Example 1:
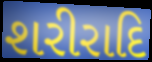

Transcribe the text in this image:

શરીરાદિ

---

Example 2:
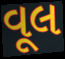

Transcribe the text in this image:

વૂલ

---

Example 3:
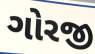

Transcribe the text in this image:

ગોરજી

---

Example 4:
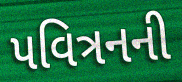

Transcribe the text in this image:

પવિત્રનની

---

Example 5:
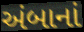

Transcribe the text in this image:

અંબાનાં